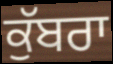
ਕੁੱਬਰਾ